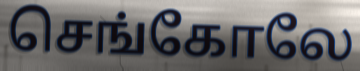
செங்கோலே